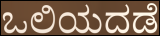
ಒಲಿಯದಡೆ